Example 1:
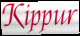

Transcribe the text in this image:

Kippur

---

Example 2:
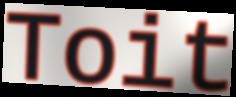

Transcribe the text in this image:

Toit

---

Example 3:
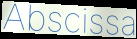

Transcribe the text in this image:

Abscissa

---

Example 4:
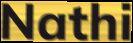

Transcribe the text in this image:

Nathi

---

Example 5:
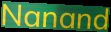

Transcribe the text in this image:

Nanand